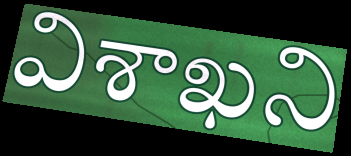
విశాఖని